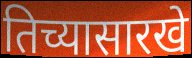
तिच्यासारखे